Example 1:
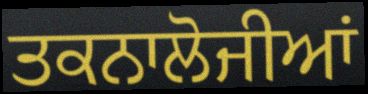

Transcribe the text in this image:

ਤਕਨਾਲੋਜੀਆਂ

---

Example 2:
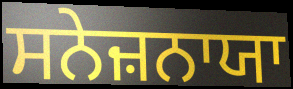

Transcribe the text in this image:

ਸਨੇਜ਼ਨਾਯਾ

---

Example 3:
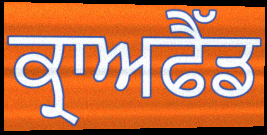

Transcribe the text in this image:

ਕ੍ਰਾਅਫੈੱਡ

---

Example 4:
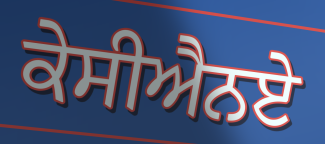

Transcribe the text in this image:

ਕੇਸੀਐਨਏ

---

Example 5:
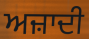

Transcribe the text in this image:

ਅਜ਼ਾਦੀ